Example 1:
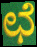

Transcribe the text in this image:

ಛೆ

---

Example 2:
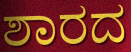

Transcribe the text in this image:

ಶಾರದ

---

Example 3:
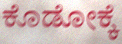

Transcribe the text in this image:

ಕೊಡೋಕ್ಕೆ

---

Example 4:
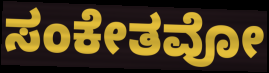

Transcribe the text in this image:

ಸಂಕೇತವೋ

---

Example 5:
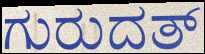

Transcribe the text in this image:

ಗುರುದತ್